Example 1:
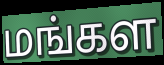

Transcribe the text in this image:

மங்கள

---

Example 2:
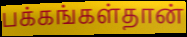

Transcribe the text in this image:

பக்கங்கள்தான்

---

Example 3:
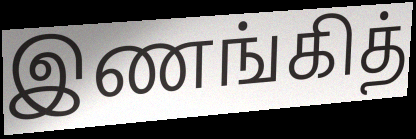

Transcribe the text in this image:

இணங்கித்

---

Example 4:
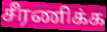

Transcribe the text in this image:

சீரணிக்க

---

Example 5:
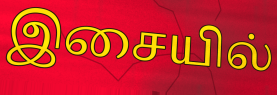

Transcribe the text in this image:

இசையில்